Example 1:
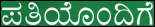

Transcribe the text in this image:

ಪತಿಯೊಂದಿಗೆ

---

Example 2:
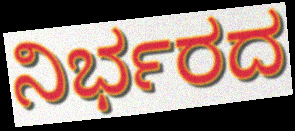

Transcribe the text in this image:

ನಿರ್ಭರದ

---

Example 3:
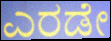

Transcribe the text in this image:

ಎರಡೇ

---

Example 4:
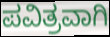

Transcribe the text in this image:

ಪವಿತ್ರವಾಗಿ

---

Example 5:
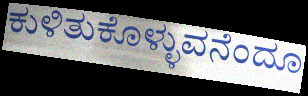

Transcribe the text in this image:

ಕುಳಿತುಕೊಳ್ಳುವನೆಂದೂ